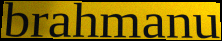
brahmanu